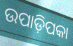
ଉପାଡ଼ିପକା